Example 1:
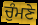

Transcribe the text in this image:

ਚੁੰਮਣੇ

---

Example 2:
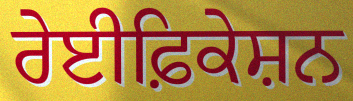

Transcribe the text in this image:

ਰੇਈਫ਼ਿਕੇਸ਼ਨ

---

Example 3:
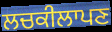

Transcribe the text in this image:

ਲਚਕੀਲਾਪਣ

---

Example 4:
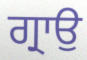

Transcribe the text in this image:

ਗ੍ਰਾਉ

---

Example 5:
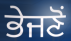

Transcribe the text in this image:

ਭੇਜਣੋਂ